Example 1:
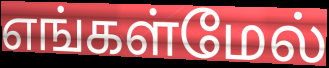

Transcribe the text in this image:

எங்கள்மேல்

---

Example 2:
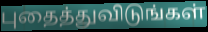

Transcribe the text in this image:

புதைத்துவிடுங்கள்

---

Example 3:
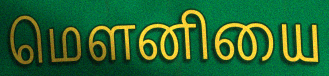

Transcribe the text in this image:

மௌனியை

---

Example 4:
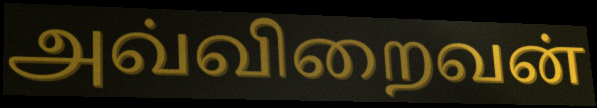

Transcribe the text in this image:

அவ்விறைவன்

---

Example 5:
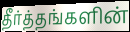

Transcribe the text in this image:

தீர்த்தங்களின்